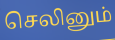
செலினும்